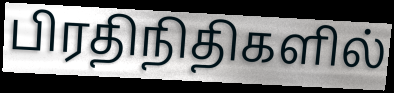
பிரதிநிதிகளில்